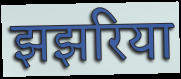
झझरिया